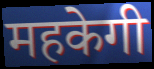
महकेगी